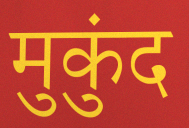
मुकुंद